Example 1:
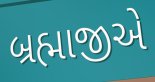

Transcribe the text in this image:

બ્રહ્માજીએ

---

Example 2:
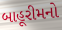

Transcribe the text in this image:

બાહૂરીમનો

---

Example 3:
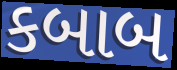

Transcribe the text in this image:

કબાબ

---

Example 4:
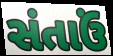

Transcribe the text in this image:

સંતાઉં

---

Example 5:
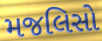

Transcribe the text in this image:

મજલિસો